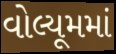
વોલ્યૂમમાં